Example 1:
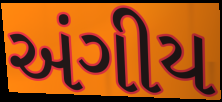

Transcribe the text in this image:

અંગીય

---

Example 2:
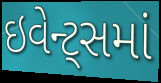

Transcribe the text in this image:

ઇવેન્ટ્સમાં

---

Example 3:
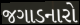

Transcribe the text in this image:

જગાડનારો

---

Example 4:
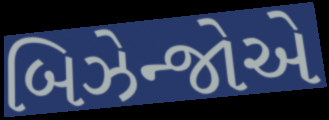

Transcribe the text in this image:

બિઝેન્જોએ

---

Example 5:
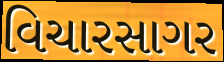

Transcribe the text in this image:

વિચારસાગર